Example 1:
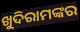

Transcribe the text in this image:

ଖୁଦିରାମଙ୍କର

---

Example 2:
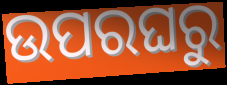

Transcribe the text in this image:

ଉପରଘରୁ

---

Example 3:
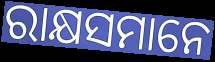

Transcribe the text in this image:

ରାକ୍ଷସମାନେ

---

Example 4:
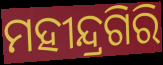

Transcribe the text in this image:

ମହୀନ୍ଦ୍ରଗିରି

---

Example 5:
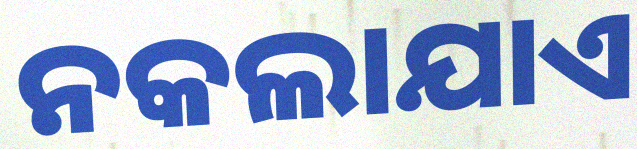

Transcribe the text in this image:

ନକଲାଯାଏ